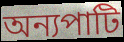
অন্যপাটি